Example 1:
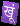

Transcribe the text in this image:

खूं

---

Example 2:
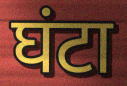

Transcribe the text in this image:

घंटा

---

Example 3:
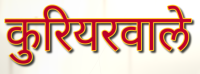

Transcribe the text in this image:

कुरियरवाले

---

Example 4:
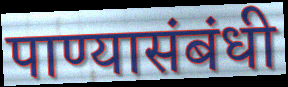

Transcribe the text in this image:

पाण्यासंबंधी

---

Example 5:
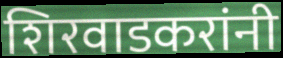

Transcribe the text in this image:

शिरवाडकरांनी